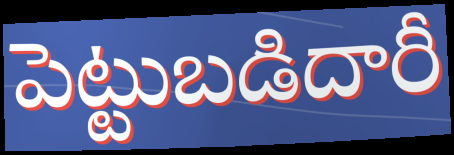
పెట్టుబడిదారీ